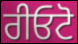
ਰੀਓਟੋ